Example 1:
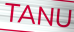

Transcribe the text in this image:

TANU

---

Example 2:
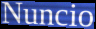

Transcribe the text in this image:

Nuncio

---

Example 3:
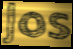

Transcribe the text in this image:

Jos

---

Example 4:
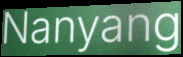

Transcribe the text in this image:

Nanyang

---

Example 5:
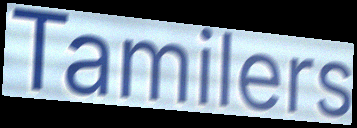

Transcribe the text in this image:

Tamilers